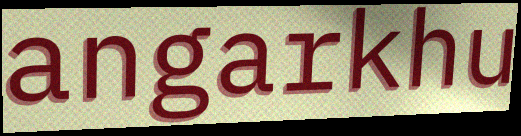
angarkhu